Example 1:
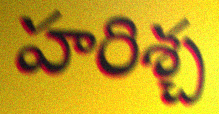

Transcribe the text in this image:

హరిశ్చ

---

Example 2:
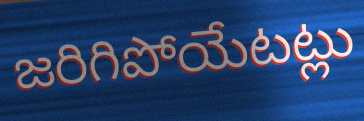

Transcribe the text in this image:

జరిగిపోయేటట్లు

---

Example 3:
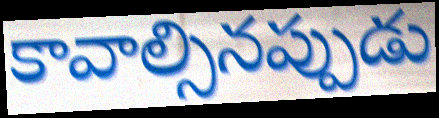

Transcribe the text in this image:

కావాల్సినప్పుడు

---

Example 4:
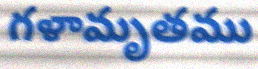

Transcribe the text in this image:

గళామృతము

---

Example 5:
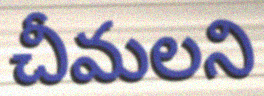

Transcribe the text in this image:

చీమలని